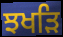
ਝਖੜਿ